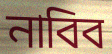
নাবিব